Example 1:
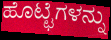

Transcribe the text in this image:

ಹೊಟ್ಟೆಗಳನ್ನು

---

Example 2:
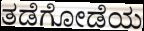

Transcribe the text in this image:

ತಡೆಗೋಡೆಯ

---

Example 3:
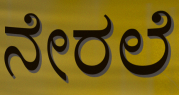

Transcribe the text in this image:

ನೇರಲೆ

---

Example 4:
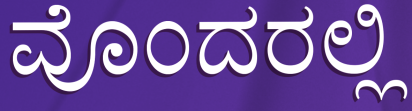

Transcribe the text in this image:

ವೊಂದರಲ್ಲಿ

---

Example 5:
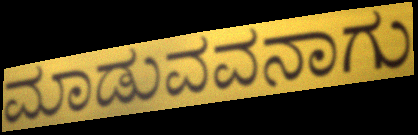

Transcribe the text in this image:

ಮಾಡುವವನಾಗು